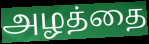
அழத்தை